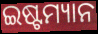
ଇଷ୍ଟମ୍ୟାନ